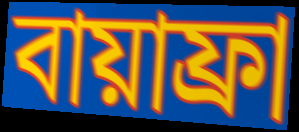
বায়াফ্রা